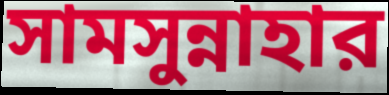
সামসুন্নাহার